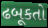
ઢબૂકતો